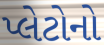
પ્લેટોનો